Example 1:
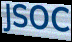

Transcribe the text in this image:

JSOC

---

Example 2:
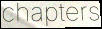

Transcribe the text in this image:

chapters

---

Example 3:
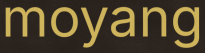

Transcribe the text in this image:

moyang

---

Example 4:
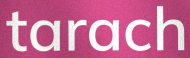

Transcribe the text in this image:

tarach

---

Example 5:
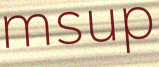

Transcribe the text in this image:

msup